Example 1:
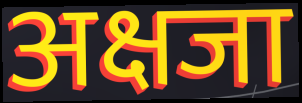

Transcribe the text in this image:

अक्षजा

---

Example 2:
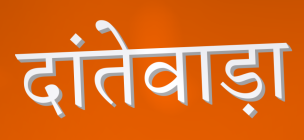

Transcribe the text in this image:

दांतेवाड़ा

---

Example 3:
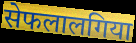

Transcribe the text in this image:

सेफलालगिया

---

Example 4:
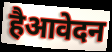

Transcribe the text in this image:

हैआवेदन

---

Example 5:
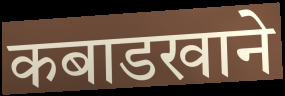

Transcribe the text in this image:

कबाडखाने